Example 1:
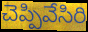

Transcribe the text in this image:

చెప్పివేసిరి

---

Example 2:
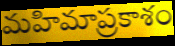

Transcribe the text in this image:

మహిమాప్రకాశం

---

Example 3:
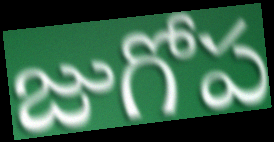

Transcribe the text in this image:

జుగోప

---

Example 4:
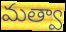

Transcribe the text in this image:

మత్వా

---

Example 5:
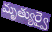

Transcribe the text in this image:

మృత్యుర్వై